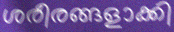
ശരീരങ്ങളാക്കി